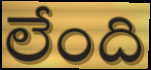
లేంది